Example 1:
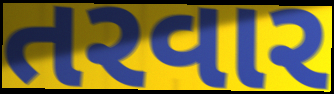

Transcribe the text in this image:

તરવાર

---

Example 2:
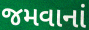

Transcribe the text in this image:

જમવાનાં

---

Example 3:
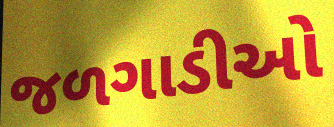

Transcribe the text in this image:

જળગાડીઓ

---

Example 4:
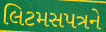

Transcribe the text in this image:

લિટમસપત્રને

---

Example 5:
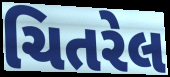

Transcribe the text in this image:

ચિતરેલ